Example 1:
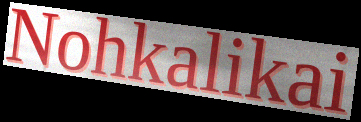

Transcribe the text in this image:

Nohkalikai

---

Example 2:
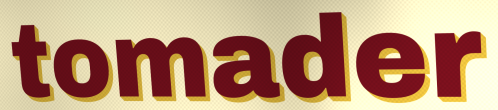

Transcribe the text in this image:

tomader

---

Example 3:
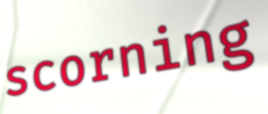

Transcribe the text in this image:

scorning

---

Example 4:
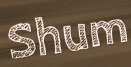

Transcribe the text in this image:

Shum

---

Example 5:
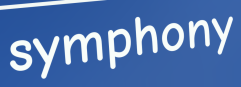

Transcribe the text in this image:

symphony